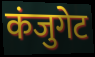
कंजुगेट